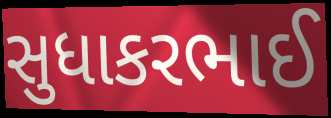
સુધાકરભાઈ